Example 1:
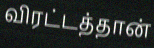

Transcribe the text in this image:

விரட்டத்தான்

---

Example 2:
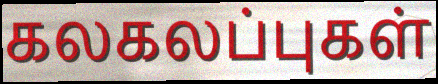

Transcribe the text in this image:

கலகலப்புகள்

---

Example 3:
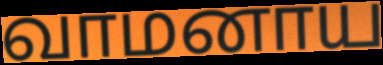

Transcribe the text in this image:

வாமனாய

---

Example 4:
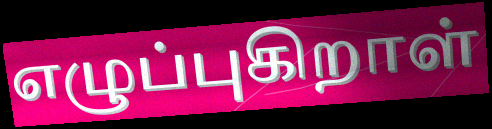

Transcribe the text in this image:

எழுப்புகிறாள்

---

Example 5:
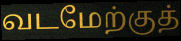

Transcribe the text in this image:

வடமேற்குத்